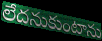
లేదనుకుంటాను